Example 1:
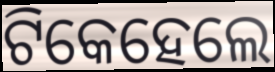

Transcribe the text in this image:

ଟିକେହେଲେ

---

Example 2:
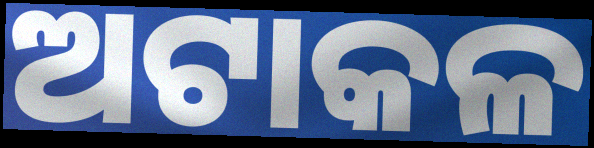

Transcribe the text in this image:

ଅଟାକଳ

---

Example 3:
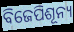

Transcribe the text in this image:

ବିଜେପିଶୂନ୍ୟ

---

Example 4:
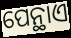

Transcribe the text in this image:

ପେନ୍ଥାଏ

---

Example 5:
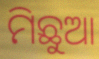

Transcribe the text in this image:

ମିଛୁଆ